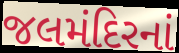
જલમંદિરનાં